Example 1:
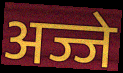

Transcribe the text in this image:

अज्जे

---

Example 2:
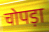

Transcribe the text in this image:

चोपड़ा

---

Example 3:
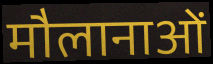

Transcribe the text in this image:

मौलानाओं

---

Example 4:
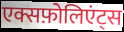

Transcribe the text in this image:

एक्सफ़ोलिएंट्स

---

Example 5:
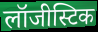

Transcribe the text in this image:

लॉजीस्टिक